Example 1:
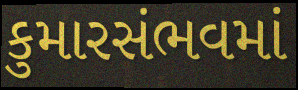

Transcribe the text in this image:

કુમારસંભવમાં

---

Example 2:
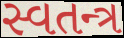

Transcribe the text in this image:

સ્વતન્ત્ર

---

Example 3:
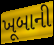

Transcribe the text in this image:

ખૂબાની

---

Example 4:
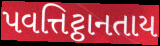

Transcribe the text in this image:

પવત્તિટ્ઠાનતાય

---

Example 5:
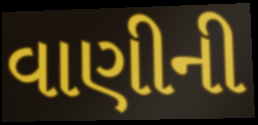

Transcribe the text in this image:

વાણીની